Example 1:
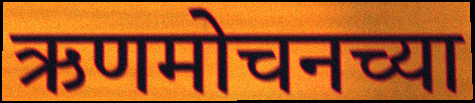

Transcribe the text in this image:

ऋणमोचनच्या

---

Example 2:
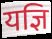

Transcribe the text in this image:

यज्ञि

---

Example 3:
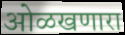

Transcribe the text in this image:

ओळखणारा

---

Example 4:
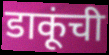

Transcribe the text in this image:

डाकूंची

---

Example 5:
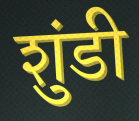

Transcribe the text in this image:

शुंडी